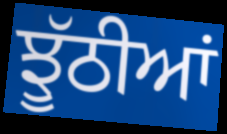
ਝੂੱਠੀਆਂ